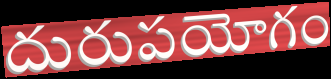
దురుపయోగం